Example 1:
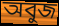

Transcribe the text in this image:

অবুজ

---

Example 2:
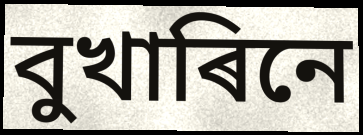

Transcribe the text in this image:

বুখাৰিনে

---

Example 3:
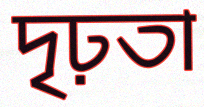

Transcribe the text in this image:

দৃঢ়তা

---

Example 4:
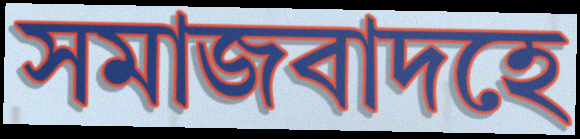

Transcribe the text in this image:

সমাজবাদহে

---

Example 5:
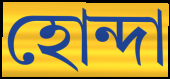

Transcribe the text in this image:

হোন্দা